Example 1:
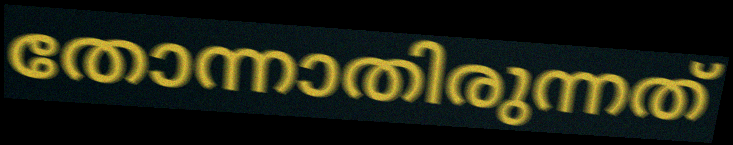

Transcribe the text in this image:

തോന്നാതിരുന്നത്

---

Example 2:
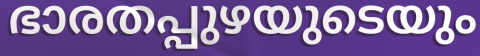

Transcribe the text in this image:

ഭാരതപ്പുഴയുടെയും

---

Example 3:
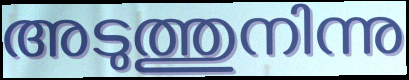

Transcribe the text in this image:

അടുത്തുനിന്നു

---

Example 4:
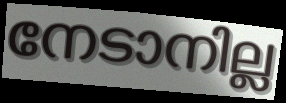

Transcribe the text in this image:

നേടാനില്ല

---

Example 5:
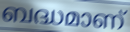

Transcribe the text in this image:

ബദ്ധമാണ്